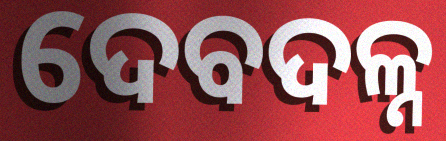
ଦେବଦଳ୍ନ